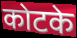
कोटके